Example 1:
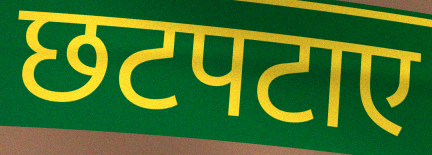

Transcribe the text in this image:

छटपटाए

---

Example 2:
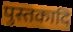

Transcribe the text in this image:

पुस्तकादि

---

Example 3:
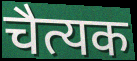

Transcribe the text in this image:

चैत्यक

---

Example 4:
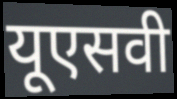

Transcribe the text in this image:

यूएसवी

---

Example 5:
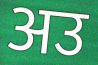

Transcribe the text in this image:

अउ